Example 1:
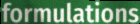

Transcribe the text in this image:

formulations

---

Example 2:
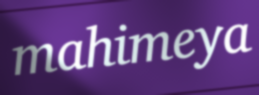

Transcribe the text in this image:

mahimeya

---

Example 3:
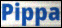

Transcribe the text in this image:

Pippa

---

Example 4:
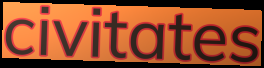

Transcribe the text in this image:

civitates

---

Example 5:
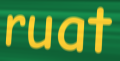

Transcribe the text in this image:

ruat